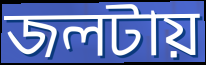
জলটায়